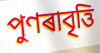
পুণৰাবৃত্তি